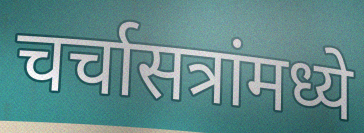
चर्चासत्रांमध्ये